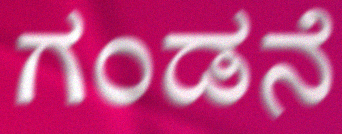
ಗಂಡನೆ